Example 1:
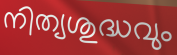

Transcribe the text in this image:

നിത്യശുദ്ധവും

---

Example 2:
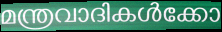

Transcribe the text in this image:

മന്ത്രവാദികൾക്കോ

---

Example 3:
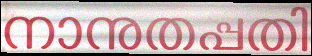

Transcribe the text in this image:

നാനുതപ്പതി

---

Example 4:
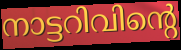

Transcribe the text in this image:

നാട്ടറിവിന്റെ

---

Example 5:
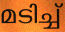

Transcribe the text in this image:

മടിച്ച്